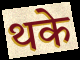
थके